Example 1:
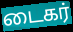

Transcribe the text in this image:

டைகர்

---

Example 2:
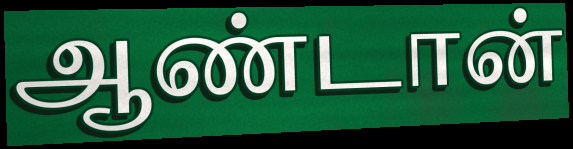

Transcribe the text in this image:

ஆண்டான்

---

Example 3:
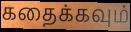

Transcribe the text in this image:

கதைக்கவும்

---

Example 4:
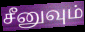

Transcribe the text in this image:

சீனுவும்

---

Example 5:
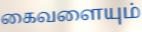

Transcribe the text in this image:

கைவளையும்